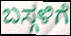
ಬಸ್ಗಳಿಗೆ